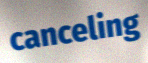
canceling